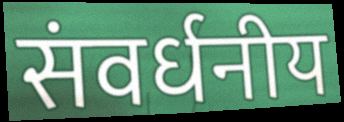
संवर्धनीय